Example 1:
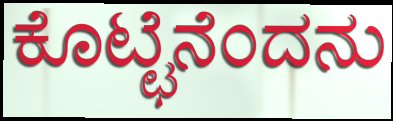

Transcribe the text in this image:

ಕೊಟ್ಟೆನೆಂದನು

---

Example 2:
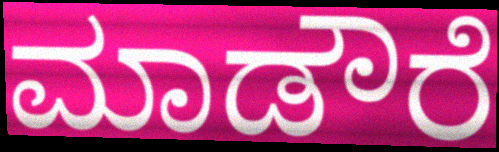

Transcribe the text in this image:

ಮಾಡೌರೆ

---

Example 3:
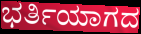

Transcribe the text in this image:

ಭರ್ತಿಯಾಗದ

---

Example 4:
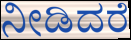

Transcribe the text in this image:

ನೀಡಿದರೆ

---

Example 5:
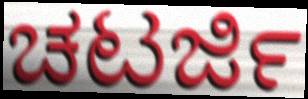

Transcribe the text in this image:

ಚಟರ್ಜಿ